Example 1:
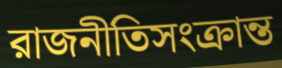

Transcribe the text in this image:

রাজনীতিসংক্রান্ত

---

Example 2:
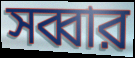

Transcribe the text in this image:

সব্বার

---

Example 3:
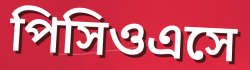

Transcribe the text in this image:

পিসিওএসে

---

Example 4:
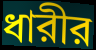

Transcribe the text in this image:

ধারীর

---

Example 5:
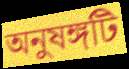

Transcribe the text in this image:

অনুষঙ্গটি